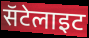
सॅटेलाइट